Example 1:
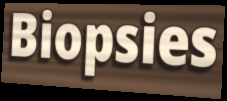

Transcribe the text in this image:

Biopsies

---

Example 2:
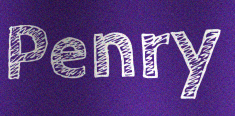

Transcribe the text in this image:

Penry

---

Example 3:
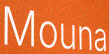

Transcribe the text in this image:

Mouna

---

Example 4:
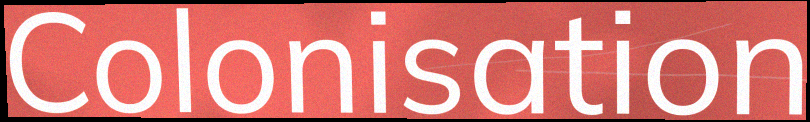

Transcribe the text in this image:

Colonisation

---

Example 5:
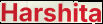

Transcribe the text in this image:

Harshita